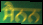
ਸੈਨਨ